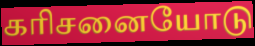
கரிசனையோடு